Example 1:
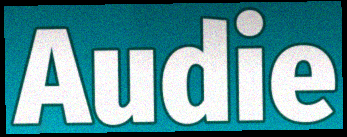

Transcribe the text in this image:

Audie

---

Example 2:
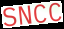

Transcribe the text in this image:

SNCC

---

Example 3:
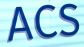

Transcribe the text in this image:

ACS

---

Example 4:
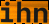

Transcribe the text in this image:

ihn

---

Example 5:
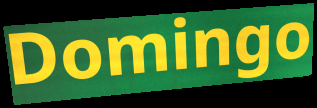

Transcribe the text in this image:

Domingo